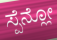
ಸ್ಪೆನ್ಲೋ